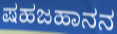
ಷಹಜಹಾನನ